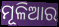
ମୂଳିଆର